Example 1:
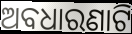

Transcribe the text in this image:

ଅବଧାରଣାଟି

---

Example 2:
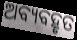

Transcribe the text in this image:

ଅବ୍ୟବହୃତ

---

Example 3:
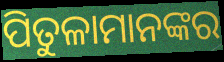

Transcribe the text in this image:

ପିତୁଳାମାନଙ୍କର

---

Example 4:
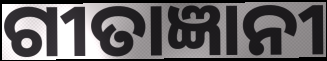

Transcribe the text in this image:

ଗୀତାଜ୍ଞାନୀ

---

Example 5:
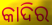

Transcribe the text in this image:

କାଦିର